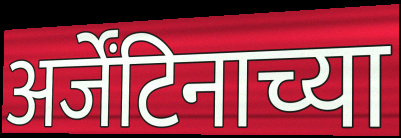
अर्जेंटिनाच्या